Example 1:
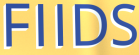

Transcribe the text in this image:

FIIDS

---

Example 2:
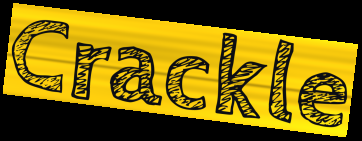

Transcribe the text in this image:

Crackle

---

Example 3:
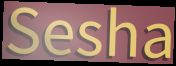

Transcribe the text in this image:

Sesha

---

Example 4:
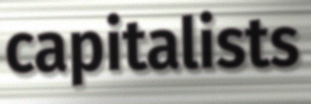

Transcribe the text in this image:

capitalists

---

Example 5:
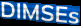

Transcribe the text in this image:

DIMSEs